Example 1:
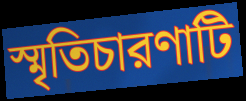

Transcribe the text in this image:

স্মৃতিচারণাটি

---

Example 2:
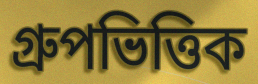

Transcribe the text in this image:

গ্রুপভিত্তিক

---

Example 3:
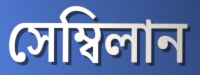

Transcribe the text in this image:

সেম্বিলান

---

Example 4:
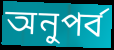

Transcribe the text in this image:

অনুপর্ব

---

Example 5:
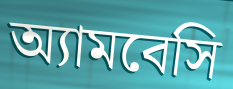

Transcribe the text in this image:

অ্যামবেসি